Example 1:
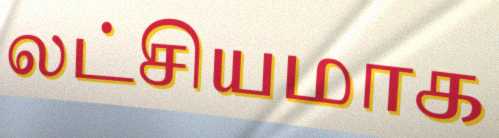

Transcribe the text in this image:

லட்சியமாக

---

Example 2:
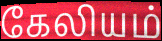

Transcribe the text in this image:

கேலியம்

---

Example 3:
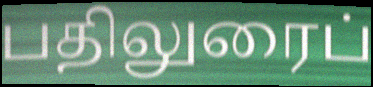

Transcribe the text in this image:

பதிலுரைப்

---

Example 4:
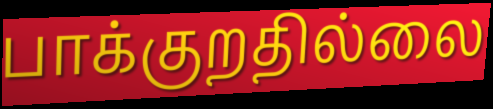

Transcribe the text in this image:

பாக்குறதில்லை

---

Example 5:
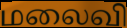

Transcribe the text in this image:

மலைவி